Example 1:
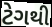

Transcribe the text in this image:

ટેગથી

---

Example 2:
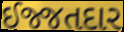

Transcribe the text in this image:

ઈજ્જતદાર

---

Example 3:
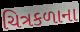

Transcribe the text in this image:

ચિત્રકળાના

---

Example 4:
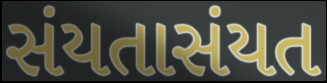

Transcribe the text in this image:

સંયતાસંયત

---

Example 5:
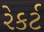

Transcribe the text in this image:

રેકર્ટ